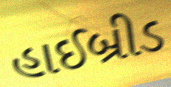
હાઈબ્રીડ